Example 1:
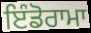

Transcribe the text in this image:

ਇੰਡੋਰਾਮਾ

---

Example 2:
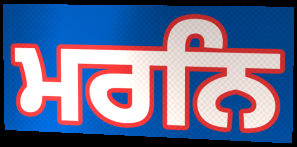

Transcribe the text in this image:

ਮਰਨਿ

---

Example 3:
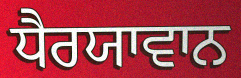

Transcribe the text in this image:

ਧੈਰਯਾਵਾਨ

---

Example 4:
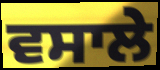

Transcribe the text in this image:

ਵਸਾਲੇ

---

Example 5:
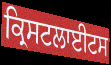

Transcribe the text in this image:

ਕ੍ਰਿਸਟਲਾਈਟਸ